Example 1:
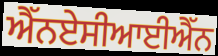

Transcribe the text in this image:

ਐੱਨਏਸੀਆਈਐੱਨ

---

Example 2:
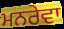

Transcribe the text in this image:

ਮਨਰੇਵਾ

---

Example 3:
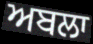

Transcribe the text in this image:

ਅਬਲਾ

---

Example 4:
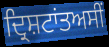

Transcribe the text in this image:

ਦ੍ਰਿਸ਼ਟਾਂਤਅਸੀਂ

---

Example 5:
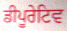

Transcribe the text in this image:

ਡੀਪੂਰੇਟਿਵ